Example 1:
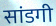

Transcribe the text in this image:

सांडगी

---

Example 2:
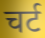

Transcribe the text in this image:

चर्ट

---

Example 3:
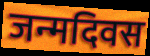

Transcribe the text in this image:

जन्मदिवस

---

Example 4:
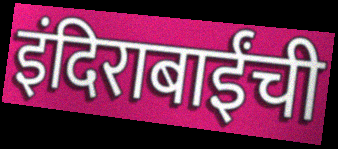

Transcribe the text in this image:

इंदिराबाईंची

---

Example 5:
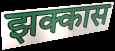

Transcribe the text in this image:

झक्कास